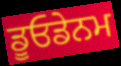
ਡੂਓਡੇਨਮ